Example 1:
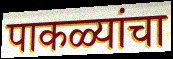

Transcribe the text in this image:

पाकळ्यांचा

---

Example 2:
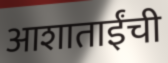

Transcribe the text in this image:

आशाताईंची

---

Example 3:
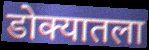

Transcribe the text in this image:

डोक्‍यातला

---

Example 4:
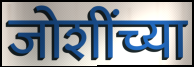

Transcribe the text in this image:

जोशींच्या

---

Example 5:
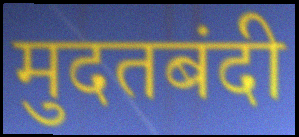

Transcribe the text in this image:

मुदतबंदी